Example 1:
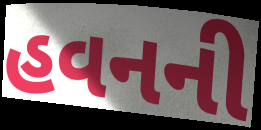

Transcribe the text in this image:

હવનની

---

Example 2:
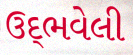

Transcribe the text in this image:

ઉદ્‌ભવેલી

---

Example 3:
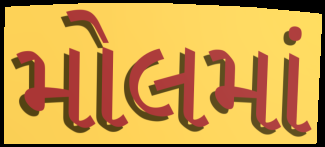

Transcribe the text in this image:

મોલમાં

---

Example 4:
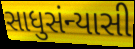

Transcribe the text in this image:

સાધુસંન્યાસી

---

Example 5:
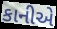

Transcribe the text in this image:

કાનીએ